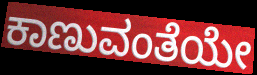
ಕಾಣುವಂತೆಯೇ